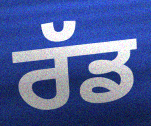
ਰੱਡ